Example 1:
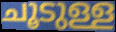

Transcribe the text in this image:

ചൂടുള്ള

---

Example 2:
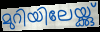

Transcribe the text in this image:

മുറിയിലേയ്ക്കു്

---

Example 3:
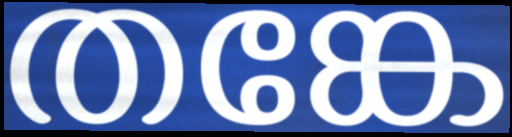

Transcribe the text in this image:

തങ്കേ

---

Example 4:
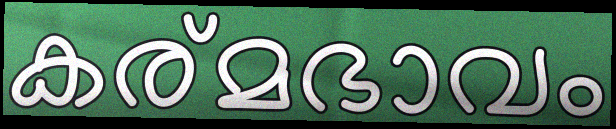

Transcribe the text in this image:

കര്മഭാവം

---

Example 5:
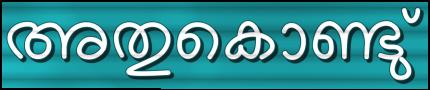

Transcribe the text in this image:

അതുകൊണ്ടു്